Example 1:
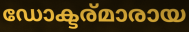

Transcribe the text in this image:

ഡോക്ടര്മാരായ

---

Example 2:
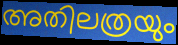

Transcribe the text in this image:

അതിലത്രയും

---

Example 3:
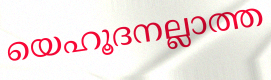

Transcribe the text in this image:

യെഹൂദനല്ലാത്ത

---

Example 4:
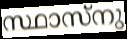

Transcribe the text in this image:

സ്ഥാസ്നു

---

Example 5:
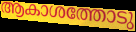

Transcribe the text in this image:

ആകാശത്തോടു